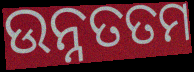
ଉନ୍ନତତମ